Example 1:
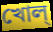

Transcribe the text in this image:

খোল্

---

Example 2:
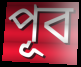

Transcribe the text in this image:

পূব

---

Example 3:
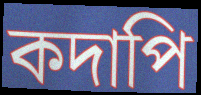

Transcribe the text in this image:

কদাপি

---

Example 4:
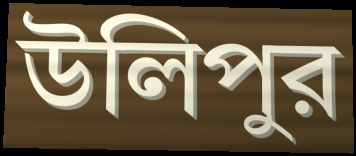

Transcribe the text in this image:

উলিপুর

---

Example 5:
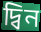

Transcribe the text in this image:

দ্বিন